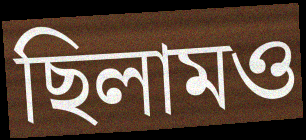
ছিলামও